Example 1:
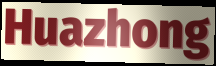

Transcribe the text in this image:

Huazhong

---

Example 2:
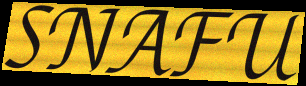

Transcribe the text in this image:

SNAFU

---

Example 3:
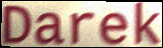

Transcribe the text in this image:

Darek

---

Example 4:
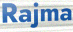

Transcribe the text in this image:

Rajma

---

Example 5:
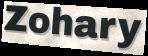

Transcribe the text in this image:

Zohary